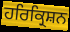
ਹਰਿਕ੍ਰਿਸ਼ਨ